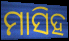
ମାସିହ